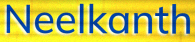
Neelkanth